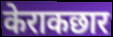
केराकछार